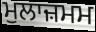
ਮੁਲਾਜ਼ਮਮ